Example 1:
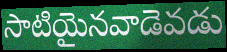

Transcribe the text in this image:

సాటియైనవాడెవడు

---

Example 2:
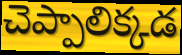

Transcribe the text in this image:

చెప్పాలిక్కడ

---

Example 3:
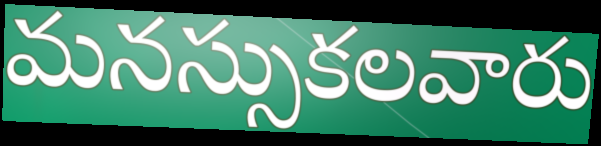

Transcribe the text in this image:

మనస్సుకలవారు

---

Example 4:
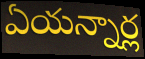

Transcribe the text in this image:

ఏయన్నార్ల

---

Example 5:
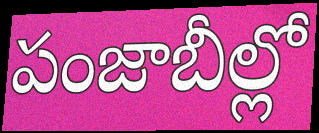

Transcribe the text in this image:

పంజాబీల్లో